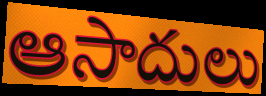
ఆసాదులు